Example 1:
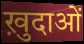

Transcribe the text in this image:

ख़ुदाओं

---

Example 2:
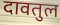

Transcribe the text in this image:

दावतुल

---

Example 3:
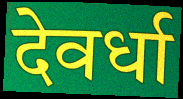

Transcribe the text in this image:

देवर्धा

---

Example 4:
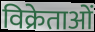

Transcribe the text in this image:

विक्रेताओं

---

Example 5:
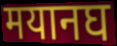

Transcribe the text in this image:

मयानघ